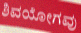
ಶಿವಯೋಗವು